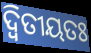
ଦ୍ବିତୀୟତଃ